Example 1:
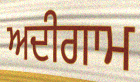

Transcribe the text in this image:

ਅਦੀਗਾਮ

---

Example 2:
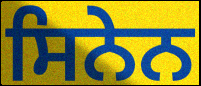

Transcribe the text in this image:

ਸਿਨੇਨ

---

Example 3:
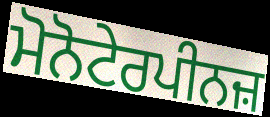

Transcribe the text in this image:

ਮੋਨੋਟੇਰਪੀਨਜ਼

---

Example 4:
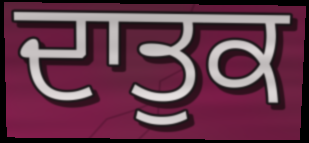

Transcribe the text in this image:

ਦਾਤੁਕ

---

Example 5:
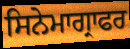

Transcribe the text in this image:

ਸਿਨੇਮਾਗ੍ਰਾਫਰ